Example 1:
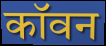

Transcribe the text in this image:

कॉवन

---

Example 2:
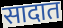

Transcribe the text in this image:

सादात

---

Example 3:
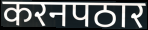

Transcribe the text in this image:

करनपठार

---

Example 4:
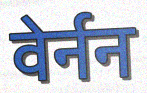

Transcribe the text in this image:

वेर्नन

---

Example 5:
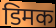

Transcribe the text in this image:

डिमक